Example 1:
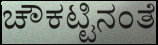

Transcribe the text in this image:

ಚೌಕಟ್ಟಿನಂತೆ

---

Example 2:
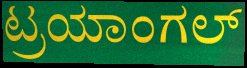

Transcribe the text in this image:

ಟ್ರಯಾಂಗಲ್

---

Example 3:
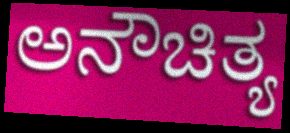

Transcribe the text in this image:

ಅನೌಚಿತ್ಯ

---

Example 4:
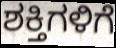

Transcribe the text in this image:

ಶಕ್ತಿಗಳಿಗೆ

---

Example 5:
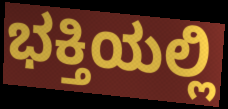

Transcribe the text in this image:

ಭಕ್ತಿಯಲ್ಲಿ